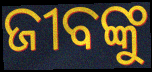
ଜୀବଙ୍କୁ